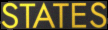
STATES